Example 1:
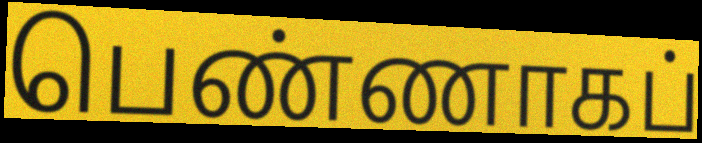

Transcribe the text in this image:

பெண்ணாகப்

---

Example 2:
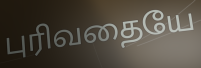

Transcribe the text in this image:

புரிவதையே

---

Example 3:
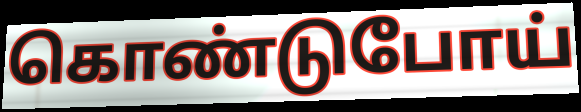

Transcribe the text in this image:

கொண்டுபோய்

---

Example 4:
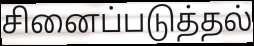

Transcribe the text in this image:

சினைப்படுத்தல்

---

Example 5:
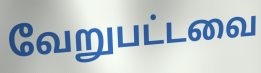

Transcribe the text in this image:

வேறுபட்டவை